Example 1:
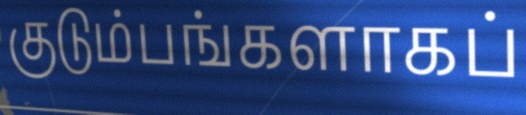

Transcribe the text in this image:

குடும்பங்களாகப்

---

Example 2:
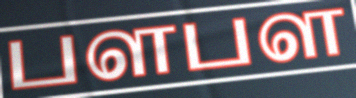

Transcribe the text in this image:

பளபள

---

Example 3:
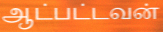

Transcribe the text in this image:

ஆட்பட்டவன்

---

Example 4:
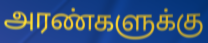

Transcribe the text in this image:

அரண்களுக்கு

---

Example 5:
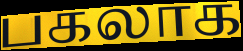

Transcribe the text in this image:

பகலாக